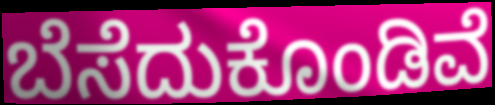
ಬೆಸೆದುಕೊಂಡಿವೆ